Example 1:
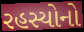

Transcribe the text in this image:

રહસ્યોનો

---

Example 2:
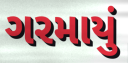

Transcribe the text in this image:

ગરમાયું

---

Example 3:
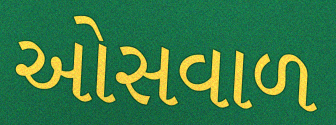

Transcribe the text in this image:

ઓસવાળ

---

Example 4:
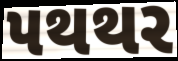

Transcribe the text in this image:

પથથર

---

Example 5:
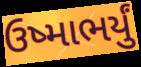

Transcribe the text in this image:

ઉષ્માભર્યું